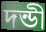
দন্ডী